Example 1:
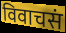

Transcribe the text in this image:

विवाचसं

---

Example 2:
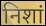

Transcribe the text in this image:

निशां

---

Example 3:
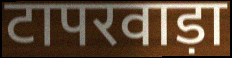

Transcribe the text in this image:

टापरवाड़ा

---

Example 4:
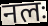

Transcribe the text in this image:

नलः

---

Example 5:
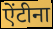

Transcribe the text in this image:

ऐंटीना